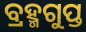
ବ୍ରହ୍ମଗୁପ୍ତ